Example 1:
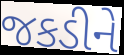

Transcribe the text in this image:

જકડીને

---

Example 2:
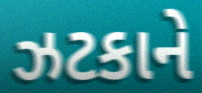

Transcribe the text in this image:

ઝટકાને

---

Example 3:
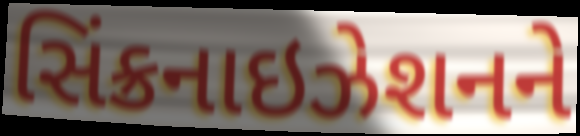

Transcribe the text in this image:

સિંક્રનાઇઝેશનને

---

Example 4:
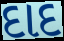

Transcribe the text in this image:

દાદ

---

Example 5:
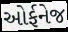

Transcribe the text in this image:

ઓર્ફનેજ